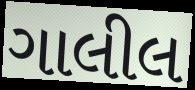
ગાલીલ